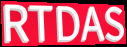
RTDAS